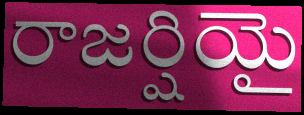
రాజర్షియై